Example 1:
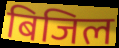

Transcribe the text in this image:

बिजिल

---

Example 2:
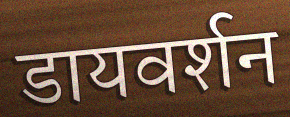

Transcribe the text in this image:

डायवर्शन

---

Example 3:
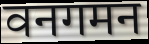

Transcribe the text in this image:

वनगमन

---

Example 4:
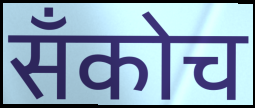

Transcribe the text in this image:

सँकोच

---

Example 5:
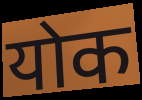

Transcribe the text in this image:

योक